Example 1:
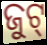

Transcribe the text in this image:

ଜୁଟ୍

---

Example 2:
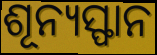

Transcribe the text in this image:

ଶୂନ୍ୟସ୍ଫାନ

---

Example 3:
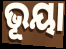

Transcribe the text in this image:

ଭୂୟା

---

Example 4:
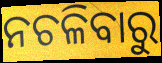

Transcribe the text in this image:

ନଚଳିବାରୁ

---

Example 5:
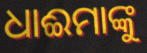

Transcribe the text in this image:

ଧାଈମାଙ୍କୁ